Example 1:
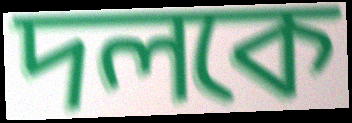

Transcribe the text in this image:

দলকে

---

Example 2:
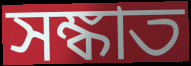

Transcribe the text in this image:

সঙ্কাত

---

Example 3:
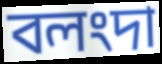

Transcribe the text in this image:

বলংদা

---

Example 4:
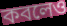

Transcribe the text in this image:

কবলেও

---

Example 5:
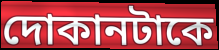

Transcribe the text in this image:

দোকানটাকে